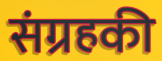
संग्रहकी